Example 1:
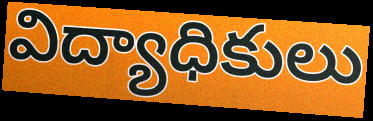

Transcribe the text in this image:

విద్యాధికులు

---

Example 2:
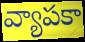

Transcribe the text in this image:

వ్యాపకా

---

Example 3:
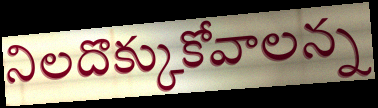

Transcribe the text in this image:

నిలదొక్కుకోవాలన్న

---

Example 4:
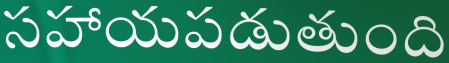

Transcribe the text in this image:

సహాయపడుతుంది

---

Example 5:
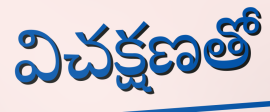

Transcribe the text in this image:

విచక్షణతో